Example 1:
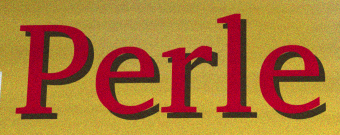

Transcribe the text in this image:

Perle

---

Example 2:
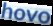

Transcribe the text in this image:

hovo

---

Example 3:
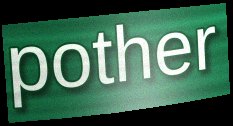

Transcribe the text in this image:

pother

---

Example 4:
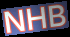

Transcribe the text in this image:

NHB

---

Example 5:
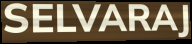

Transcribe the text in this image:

SELVARAJ